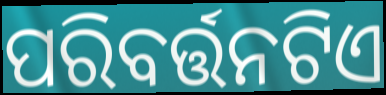
ପରିବର୍ତ୍ତନଟିଏ